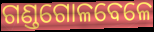
ଗଣ୍ଡଗୋଳବେଳେ